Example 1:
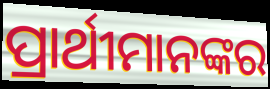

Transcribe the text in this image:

ପ୍ରାର୍ଥୀମାନଙ୍କର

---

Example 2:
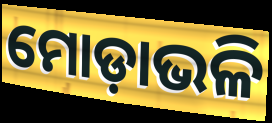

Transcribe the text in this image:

ମୋଡ଼ାଭଳି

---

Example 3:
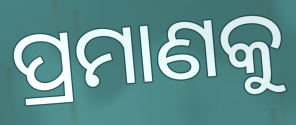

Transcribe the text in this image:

ପ୍ରମାଣକୁ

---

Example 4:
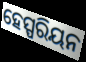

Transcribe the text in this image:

ହେସ୍ପରିୟନ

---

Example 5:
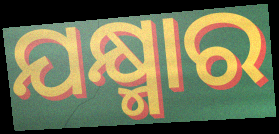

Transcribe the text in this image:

ଯକ୍ଷ୍ମାର